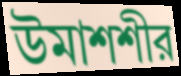
উমাশশীর